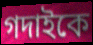
গদাইকে